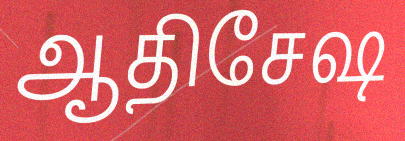
ஆதிசேஷ